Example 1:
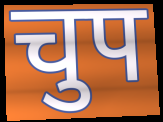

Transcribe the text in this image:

चुप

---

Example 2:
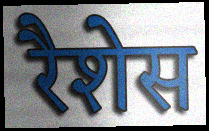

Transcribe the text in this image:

रैशेस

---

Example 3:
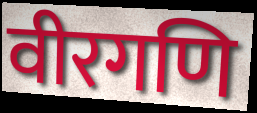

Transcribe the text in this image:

वीरगणि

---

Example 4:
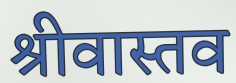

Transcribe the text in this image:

श्रीवास्तव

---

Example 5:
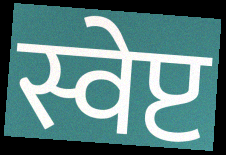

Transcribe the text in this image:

स्वेप्ट